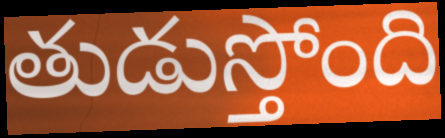
తుడుస్తోంది